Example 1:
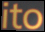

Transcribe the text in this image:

ito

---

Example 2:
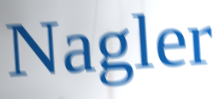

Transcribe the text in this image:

Nagler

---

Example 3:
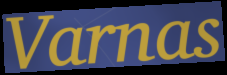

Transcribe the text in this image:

Varnas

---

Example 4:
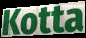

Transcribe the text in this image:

Kotta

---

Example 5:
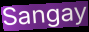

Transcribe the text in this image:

Sangay